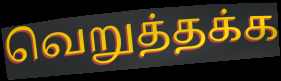
வெறுத்தக்க